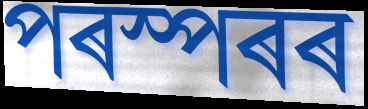
পৰস্পৰৰ